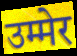
उम्मेर